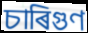
চাৰিগুণ